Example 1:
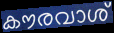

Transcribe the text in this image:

കൗരവാശ്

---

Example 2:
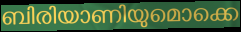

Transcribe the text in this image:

ബിരിയാണിയുമൊക്കെ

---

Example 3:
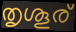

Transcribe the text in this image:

തൃശൂര്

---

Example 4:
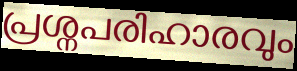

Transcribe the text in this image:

പ്രശ്നപരിഹാരവും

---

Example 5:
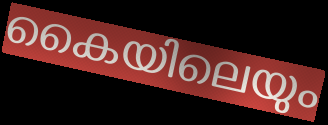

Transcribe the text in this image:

കൈയിലെയും